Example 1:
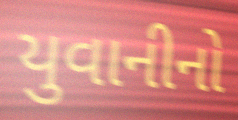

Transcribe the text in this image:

યુવાનીનો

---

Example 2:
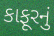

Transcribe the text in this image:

કાફૂરનું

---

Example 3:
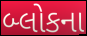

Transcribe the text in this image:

બ્લોકના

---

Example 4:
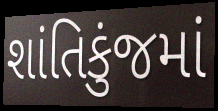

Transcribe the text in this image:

શાંતિકુંજમાં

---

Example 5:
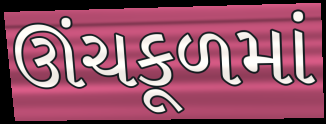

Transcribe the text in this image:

ઊંચકૂળમાં